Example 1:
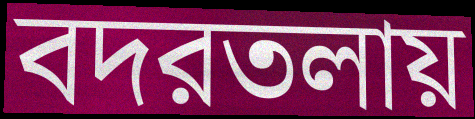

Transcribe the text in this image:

বদরতলায়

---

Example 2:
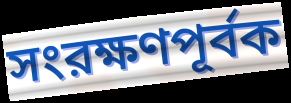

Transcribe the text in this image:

সংরক্ষণপূর্বক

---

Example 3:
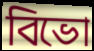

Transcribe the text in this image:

বিভো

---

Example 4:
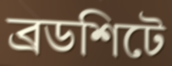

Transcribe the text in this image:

ব্রডশিটে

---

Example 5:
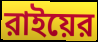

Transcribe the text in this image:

রাইয়ের